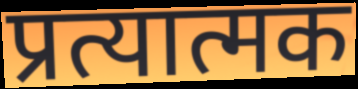
प्रत्यात्मक